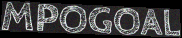
MPOGOAL